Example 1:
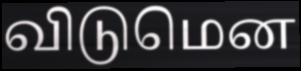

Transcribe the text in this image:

விடுமென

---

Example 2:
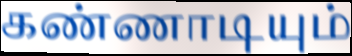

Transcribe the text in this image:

கண்ணாடியும்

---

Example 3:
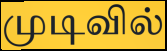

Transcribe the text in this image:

முடிவில்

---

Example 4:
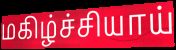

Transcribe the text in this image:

மகிழ்ச்சியாய்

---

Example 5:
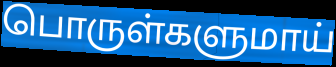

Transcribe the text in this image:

பொருள்களுமாய்